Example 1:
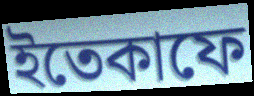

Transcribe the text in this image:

ইতেকাফে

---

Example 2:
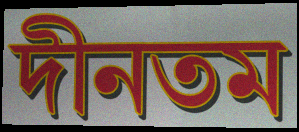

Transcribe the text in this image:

দীনতম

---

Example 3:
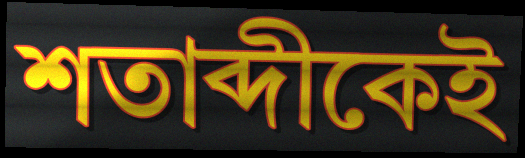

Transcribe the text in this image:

শতাব্দীকেই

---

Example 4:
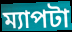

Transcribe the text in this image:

ম্যাপটা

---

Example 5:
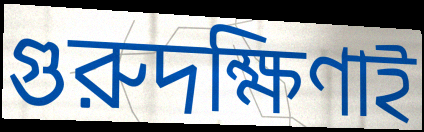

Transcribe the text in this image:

গুরুদক্ষিণাই